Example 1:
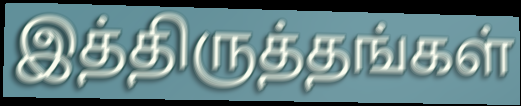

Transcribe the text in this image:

இத்திருத்தங்கள்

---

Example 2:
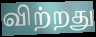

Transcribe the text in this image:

விற்றது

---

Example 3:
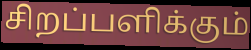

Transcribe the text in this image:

சிறப்பளிக்கும்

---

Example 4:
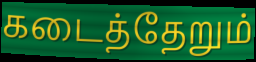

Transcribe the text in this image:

கடைத்தேறும்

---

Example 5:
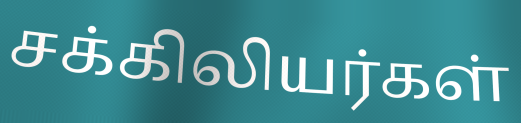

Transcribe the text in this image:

சக்கிலியர்கள்